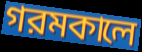
গরমকালে